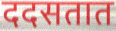
ददसतात